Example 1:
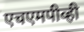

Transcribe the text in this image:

एचएमपीव्ही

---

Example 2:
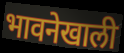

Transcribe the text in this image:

भावनेखाली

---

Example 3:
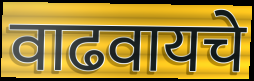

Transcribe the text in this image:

वाढवायचे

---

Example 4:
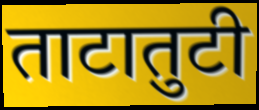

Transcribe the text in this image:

ताटातुटी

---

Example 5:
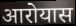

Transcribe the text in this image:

आरोयास